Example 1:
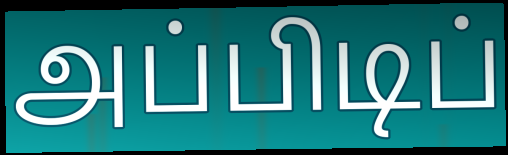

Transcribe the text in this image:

அப்பிடிப்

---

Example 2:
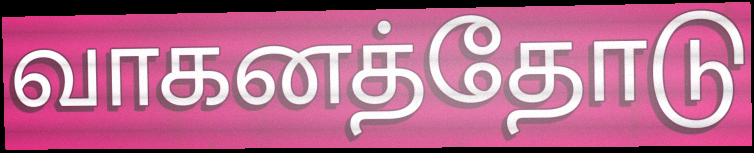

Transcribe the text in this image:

வாகனத்தோடு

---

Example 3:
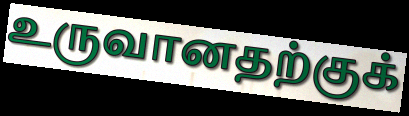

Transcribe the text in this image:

உருவானதற்குக்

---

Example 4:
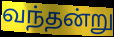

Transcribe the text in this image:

வந்தன்று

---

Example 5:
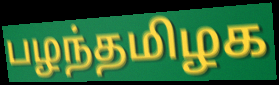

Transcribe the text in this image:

பழந்தமிழக